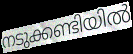
നടുക്കണ്ടിയിൽ